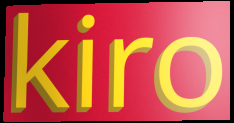
kiro